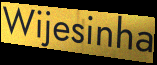
Wijesinha